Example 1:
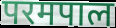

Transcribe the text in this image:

परमपाल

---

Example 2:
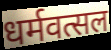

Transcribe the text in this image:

धर्मवत्सल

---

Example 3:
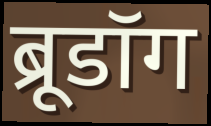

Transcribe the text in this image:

ब्रूडॉग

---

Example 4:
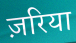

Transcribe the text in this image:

ज़रिया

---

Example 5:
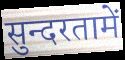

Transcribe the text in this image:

सुन्दरतामें